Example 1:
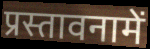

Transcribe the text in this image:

प्रस्तावनामें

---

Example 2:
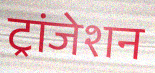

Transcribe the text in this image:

ट्रांजेशन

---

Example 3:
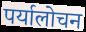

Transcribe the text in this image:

पर्यालोचन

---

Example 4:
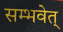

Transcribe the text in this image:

सम्भवेत्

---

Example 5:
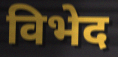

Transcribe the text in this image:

विभेद